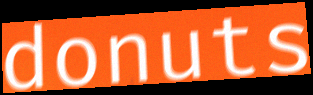
donuts